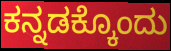
ಕನ್ನಡಕ್ಕೊಂದು